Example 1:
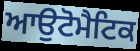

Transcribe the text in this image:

ਆਉਟੋਮੈਟਿਕ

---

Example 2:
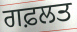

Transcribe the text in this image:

ਗਫ਼ਲਤ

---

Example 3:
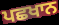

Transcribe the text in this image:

ਪਛਖਾਨ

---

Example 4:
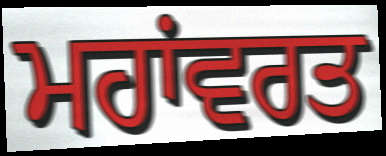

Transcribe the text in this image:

ਮਹਾਂਵਰਤ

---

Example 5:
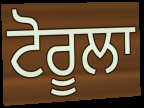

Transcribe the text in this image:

ਟੋਰੂਲਾ